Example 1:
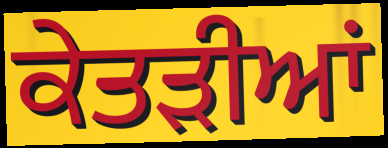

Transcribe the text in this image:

ਕੇਤੜੀਆਂ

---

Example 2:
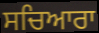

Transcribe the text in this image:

ਸਚਿਆਰਾ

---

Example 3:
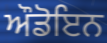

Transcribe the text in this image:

ਔਡੋਇਨ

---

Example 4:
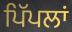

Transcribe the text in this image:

ਪਿੱਪਲਾਂ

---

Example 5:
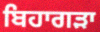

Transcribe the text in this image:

ਬਿਹਾਗੜਾ